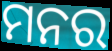
ମନର